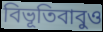
বিভূতিবাবুও